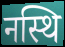
नस्थि